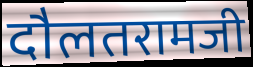
दौलतरामजी